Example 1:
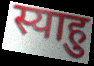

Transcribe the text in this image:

स्याहु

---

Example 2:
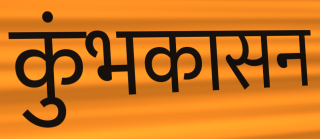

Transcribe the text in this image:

कुंभकासन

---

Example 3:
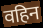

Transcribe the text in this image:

वहिन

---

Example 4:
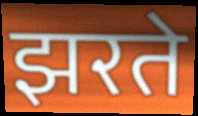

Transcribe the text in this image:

झरते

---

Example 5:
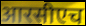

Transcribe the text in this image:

आरसीएच